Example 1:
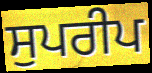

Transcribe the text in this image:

ਸੁਪਰੀਪ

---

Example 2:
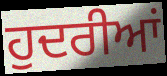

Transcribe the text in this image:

ਹੁਦਰੀਆਂ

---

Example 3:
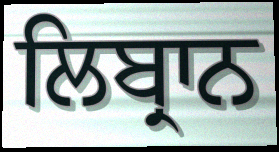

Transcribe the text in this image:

ਲਿਬ੍ਰਾਨ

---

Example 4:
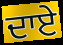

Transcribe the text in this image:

ਦਾਏ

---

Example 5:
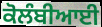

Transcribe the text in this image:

ਕੋਲੰਬੀਆਈ